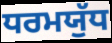
ਧਰਮਯੁੱਧ